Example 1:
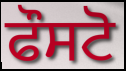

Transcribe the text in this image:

ਫੌਸਟੋ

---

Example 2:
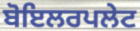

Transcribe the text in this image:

ਬੋਇਲਰਪਲੇਟ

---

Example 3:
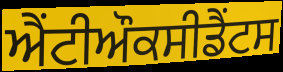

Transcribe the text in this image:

ਐਂਟੀਔਕਸੀਡੈਂਟਸ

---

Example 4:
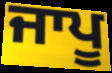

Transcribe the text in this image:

ਜਾਪੂ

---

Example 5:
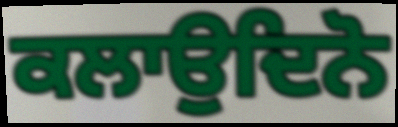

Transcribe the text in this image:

ਕਲਾਉਦਿਨੋ